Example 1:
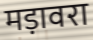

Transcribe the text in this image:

मड़ावरा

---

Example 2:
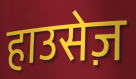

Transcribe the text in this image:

हाउसेज़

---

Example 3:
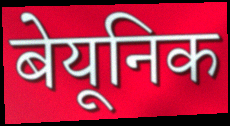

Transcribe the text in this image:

बेयूनिक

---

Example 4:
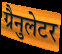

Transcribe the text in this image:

ग्रैनुलेटर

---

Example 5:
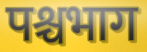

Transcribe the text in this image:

पश्चभाग